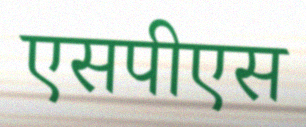
एसपीएस